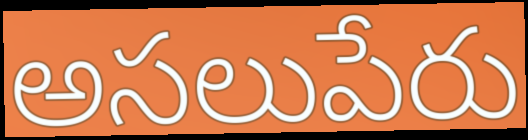
అసలుపేరు